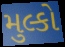
મુલ્કો